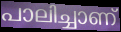
പാലിച്ചാണ്